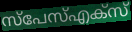
സ്പേസ്എക്സ്